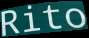
Rito